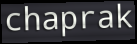
chaprak